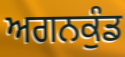
ਅਗਨਕੁੰਡ